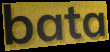
bata